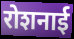
रोशनाई